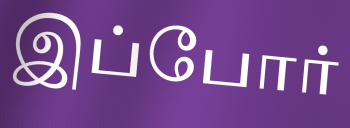
இப்போர்